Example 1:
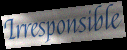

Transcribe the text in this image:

Irresponsible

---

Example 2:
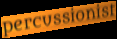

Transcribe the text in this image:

percussionist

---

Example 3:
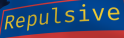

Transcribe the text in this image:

Repulsive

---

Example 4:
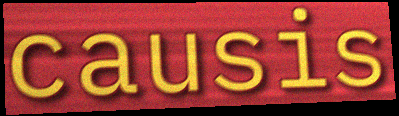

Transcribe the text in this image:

causis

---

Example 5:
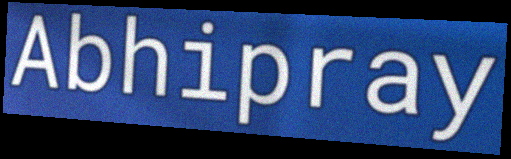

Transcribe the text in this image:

Abhipray